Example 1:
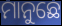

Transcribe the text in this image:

ମାନୁଛେ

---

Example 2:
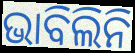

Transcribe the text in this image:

ଭାବିଲିନି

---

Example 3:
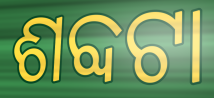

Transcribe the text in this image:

ଶବ୍ଦଟା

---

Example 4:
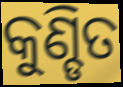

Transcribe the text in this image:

କୁଣ୍ଡିତ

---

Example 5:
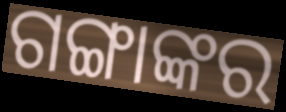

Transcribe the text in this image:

ଗଙ୍ଗାଙ୍କର